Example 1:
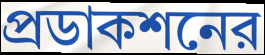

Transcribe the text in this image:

প্রডাকশনের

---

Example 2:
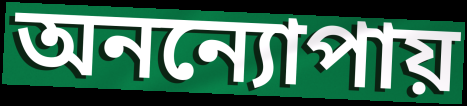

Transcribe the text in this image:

অনন্যোপায়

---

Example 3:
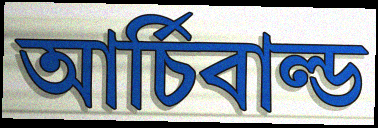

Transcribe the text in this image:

আর্চিবাল্ড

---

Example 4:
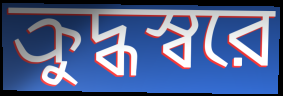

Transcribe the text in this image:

ক্রুদ্ধস্বরে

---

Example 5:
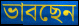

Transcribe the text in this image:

ভাবছেন